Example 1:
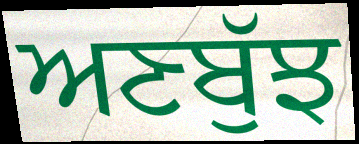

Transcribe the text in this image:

ਅਣਬੁੱਝ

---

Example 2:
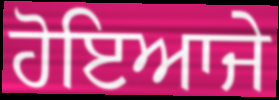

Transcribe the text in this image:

ਹੋਇਆਜੇ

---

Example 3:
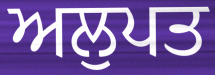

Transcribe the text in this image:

ਅਲੁਪਤ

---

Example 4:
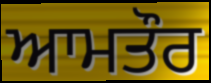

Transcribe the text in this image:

ਆਮਤੌਰ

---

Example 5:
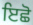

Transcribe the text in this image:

ਇਛੋ